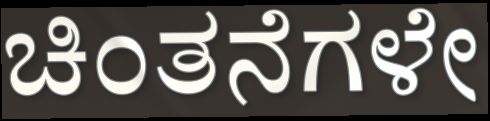
ಚಿಂತನೆಗಳೇ